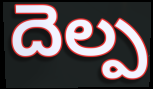
దెల్ప